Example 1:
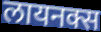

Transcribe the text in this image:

लायनक्स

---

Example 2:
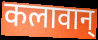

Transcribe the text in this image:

कलावान्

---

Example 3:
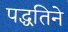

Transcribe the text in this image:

पद्धतिने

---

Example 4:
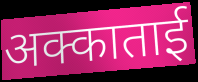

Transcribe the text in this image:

अक्काताई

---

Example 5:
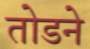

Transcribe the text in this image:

तोडने